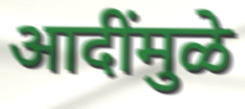
आदींमुळे